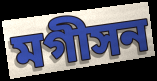
মগীসন